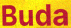
Buda